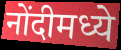
नोंदीमध्ये